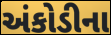
અંકોડીના